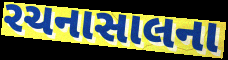
રચનાસાલના